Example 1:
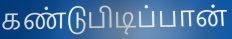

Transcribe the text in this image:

கண்டுபிடிப்பான்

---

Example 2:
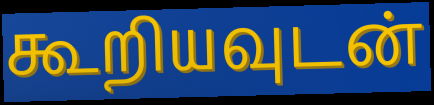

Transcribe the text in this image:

கூறியவுடன்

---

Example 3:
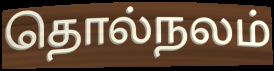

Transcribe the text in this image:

தொல்நலம்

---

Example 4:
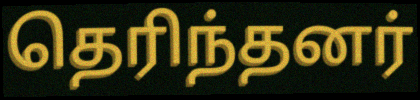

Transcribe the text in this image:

தெரிந்தனர்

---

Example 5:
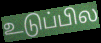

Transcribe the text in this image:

உடுப்பில